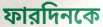
ফারদিনকে